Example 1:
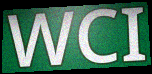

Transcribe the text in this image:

WCI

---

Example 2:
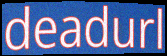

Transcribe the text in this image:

deadurl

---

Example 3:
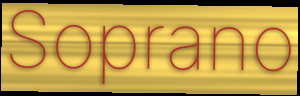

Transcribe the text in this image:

Soprano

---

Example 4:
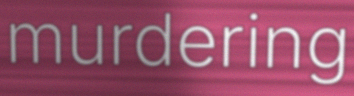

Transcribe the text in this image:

murdering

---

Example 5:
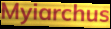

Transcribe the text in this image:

Myiarchus